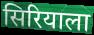
सिरियाला